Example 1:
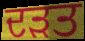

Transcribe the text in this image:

ਦੜਤ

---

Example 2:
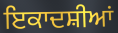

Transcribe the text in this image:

ਇਕਾਦਸ਼ੀਆਂ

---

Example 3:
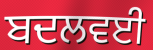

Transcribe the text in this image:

ਬਦਲਵਈ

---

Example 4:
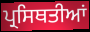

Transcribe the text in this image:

ਪ੍ਰਸਿਥਤੀਆਂ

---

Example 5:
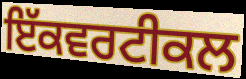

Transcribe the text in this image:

ਇੱਕਵਰਟੀਕਲ